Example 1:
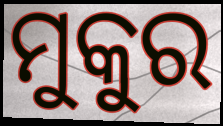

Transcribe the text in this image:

ମୁକୁର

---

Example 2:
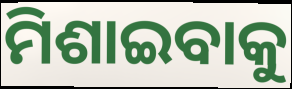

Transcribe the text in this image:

ମିଶାଇବାକୁ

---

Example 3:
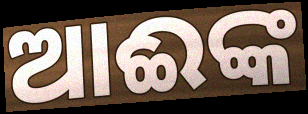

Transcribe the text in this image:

ଆଈଙ୍କ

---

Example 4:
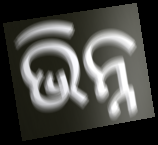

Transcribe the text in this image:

ଭିନ୍ନ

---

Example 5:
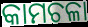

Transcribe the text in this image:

କାମଚଳା